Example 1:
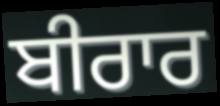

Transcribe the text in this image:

ਬੀਰਾਰ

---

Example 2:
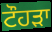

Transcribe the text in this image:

ਟੌਹਡ਼ਾ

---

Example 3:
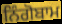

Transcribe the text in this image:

ਨਿੰਗੋਬਾਮ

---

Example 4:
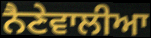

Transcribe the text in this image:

ਨੈਣੇਵਾਲੀਆ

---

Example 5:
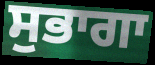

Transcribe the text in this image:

ਸੁਭਾਗਾ